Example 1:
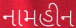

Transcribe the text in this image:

નામહીન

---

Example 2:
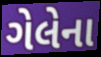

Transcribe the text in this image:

ગેલેના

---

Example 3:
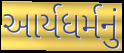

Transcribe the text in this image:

આર્યધર્મનું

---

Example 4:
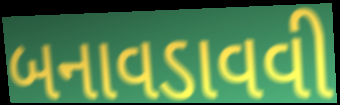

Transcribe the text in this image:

બનાવડાવવી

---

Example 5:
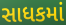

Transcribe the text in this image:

સાધકમાં